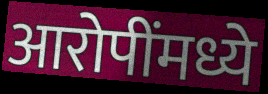
आरोपींमध्ये